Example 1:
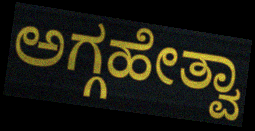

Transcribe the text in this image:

ಅಗ್ಗಹೇತ್ವಾ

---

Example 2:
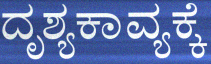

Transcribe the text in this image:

ದೃಶ್ಯಕಾವ್ಯಕ್ಕೆ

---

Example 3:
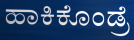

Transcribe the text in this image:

ಹಾಕಿಕೊಂಡ್ರೆ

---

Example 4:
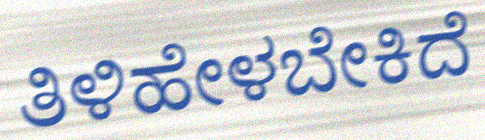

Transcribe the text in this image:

ತಿಳಿಹೇಳಬೇಕಿದೆ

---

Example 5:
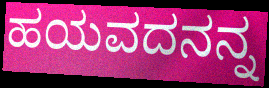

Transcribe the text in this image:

ಹಯವದನನ್ನ